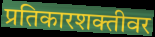
प्रतिकारशक्तीवर